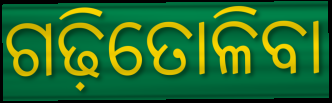
ଗଢ଼ିତୋଳିବା